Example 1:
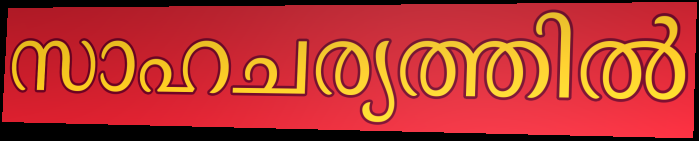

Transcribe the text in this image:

സാഹചര്യത്തിൽ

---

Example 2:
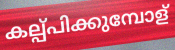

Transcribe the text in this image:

കല്പ്പിക്കുമ്പോള്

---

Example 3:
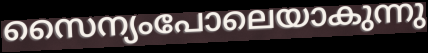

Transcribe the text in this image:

സൈന്യംപോലെയാകുന്നു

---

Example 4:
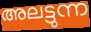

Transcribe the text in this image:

അലട്ടുന്ന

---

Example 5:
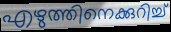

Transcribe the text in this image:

എഴുത്തിനെക്കുറിച്ച്